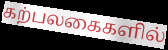
கற்பலகைகளில்